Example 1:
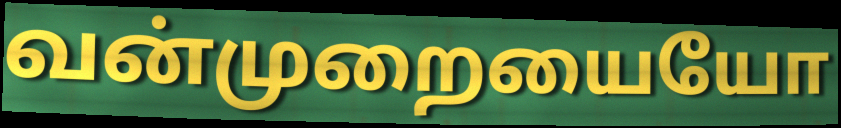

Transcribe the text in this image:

வன்முறையையோ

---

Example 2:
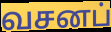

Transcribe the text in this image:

வசனப்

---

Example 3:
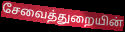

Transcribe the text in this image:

சேவைத்துறையின்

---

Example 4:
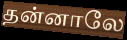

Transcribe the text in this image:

தன்னாலே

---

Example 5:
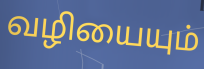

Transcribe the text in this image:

வழியையும்